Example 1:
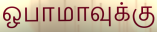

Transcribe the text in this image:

ஒபாமாவுக்கு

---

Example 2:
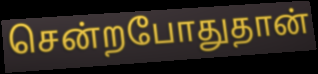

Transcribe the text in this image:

சென்றபோதுதான்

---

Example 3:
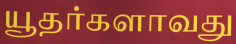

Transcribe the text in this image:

யூதர்களாவது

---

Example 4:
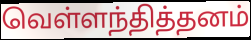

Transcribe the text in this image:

வெள்ளந்தித்தனம்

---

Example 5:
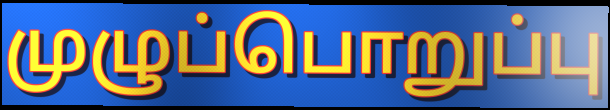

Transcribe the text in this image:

முழுப்பொறுப்பு